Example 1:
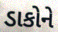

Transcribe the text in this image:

ડાકોને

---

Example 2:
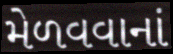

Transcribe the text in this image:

મેળવવાનાં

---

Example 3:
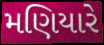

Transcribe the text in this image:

મણિયારે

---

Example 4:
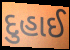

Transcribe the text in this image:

દુહાઈ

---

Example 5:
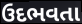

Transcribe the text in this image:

ઉદભવતા